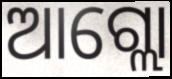
ଆଗ୍ଲୋ